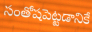
సంతోషపెట్టడానికే